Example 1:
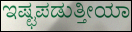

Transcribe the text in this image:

ಇಷ್ಟಪಡುತ್ತೀಯಾ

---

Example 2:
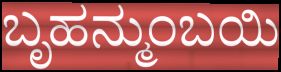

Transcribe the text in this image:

ಬೃಹನ್ಮುಂಬಯಿ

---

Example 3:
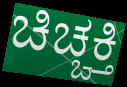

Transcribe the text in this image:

ಚಿಚ್ಚಕ್ತಿ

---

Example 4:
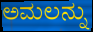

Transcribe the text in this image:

ಅಮಲನ್ನು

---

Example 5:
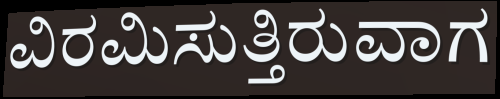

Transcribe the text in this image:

ವಿರಮಿಸುತ್ತಿರುವಾಗ